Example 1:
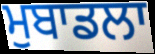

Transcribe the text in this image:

ਮੁਬਾਡਲਾ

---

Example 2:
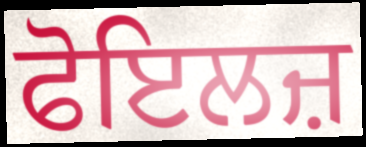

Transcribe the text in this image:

ਫੋਇਲਜ਼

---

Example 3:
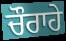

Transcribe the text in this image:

ਚੌਰਾਹੇ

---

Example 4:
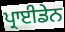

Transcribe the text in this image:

ਪ੍ਰਾਈਡੇਨ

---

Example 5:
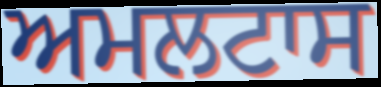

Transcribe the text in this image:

ਅਮਲਟਾਸ